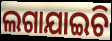
ଲଗାଯାଇଚି